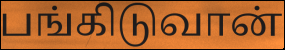
பங்கிடுவான்